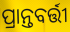
ପ୍ରାନ୍ତବର୍ତ୍ତୀ